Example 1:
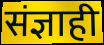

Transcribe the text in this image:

संज्ञाही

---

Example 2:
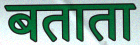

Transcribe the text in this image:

बताता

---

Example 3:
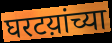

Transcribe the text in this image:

घरटय़ांच्या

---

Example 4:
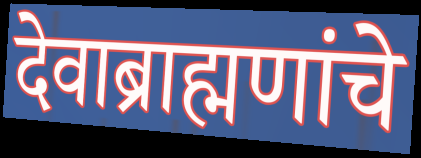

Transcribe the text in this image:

देवाब्राह्मणांचे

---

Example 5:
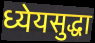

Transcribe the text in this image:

ध्येयसुद्धा